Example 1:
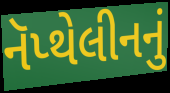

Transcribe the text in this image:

નૅપ્થેલીનનું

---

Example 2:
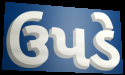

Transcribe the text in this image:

ઉપડે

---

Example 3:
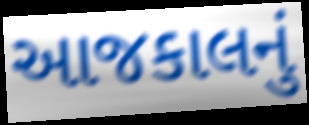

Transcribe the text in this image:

આજકાલનું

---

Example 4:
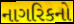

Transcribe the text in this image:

નાગરિકનો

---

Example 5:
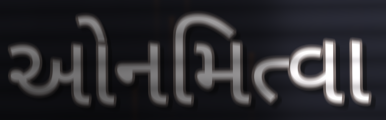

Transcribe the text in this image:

ઓનમિત્વા